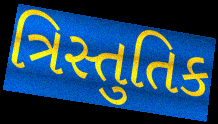
ત્રિસ્તુતિક